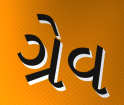
ગ્રેવ